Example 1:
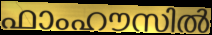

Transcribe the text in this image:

ഫാംഹൗസിൽ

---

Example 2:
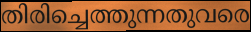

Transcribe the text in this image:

തിരിച്ചെത്തുന്നതുവരെ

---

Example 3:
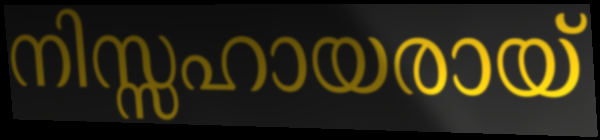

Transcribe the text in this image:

നിസ്സഹായരായ്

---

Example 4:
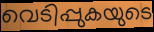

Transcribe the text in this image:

വെടിപ്പുകയുടെ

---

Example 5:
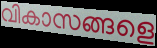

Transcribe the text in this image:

വികാസങ്ങളെ